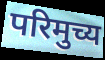
परिमुच्य